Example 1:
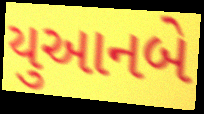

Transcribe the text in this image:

યુઆનબે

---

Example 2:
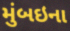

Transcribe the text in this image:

મુંબઇના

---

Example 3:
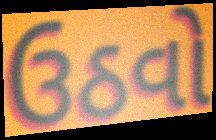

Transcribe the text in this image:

ઉઠવો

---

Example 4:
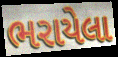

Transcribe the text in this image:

ભરાયેલા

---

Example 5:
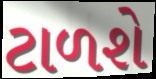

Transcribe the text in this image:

ટાળશે